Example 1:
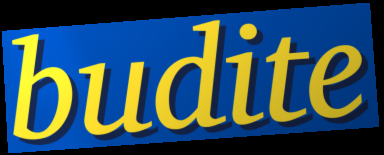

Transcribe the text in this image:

budite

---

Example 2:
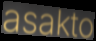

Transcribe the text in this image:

asakto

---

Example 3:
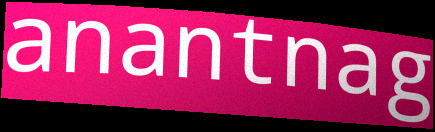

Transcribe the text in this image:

anantnag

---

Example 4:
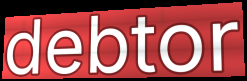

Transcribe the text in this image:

debtor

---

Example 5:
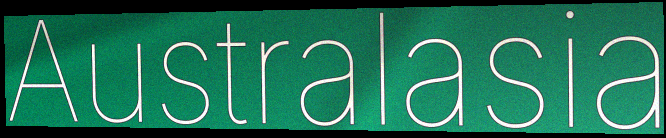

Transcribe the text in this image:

Australasia